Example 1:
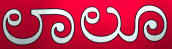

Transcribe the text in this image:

ಲಾಲೂ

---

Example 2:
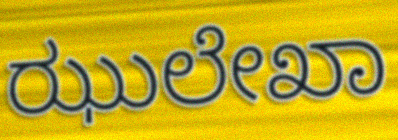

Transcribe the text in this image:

ಝುಲೇಖಾ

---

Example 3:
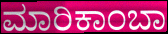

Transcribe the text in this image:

ಮಾರಿಕಾಂಬಾ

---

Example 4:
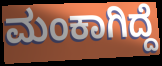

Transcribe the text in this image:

ಮಂಕಾಗಿದ್ದೆ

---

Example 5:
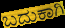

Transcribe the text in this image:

ಬದುಕಾಗಿ